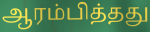
ஆரம்பித்தது